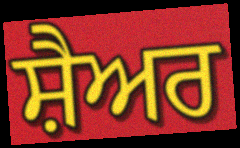
ਸ਼ੈਅਰ